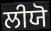
ਲੀਯੋ